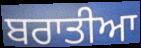
ਬਰਾਤੀਆ